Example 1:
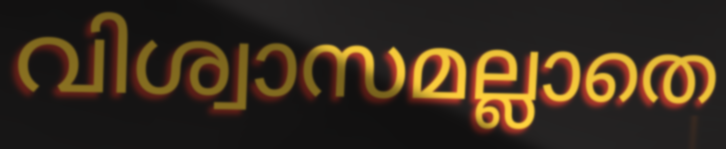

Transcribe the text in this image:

വിശ്വാസമല്ലാതെ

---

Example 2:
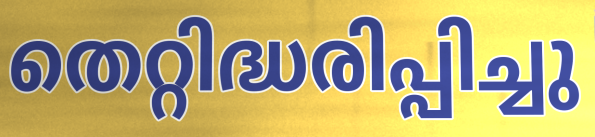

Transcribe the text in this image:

തെറ്റിദ്ധരിപ്പിച്ചു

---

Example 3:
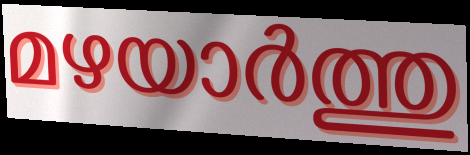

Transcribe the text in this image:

മഴയാർത്തു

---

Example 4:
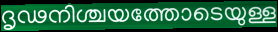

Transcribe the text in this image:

ദൃഢനിശ്ചയത്തോടെയുള്ള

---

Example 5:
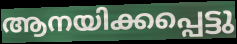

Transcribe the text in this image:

ആനയിക്കപ്പെട്ടു